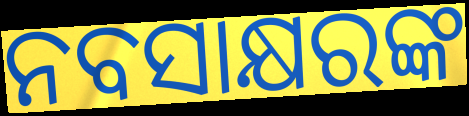
ନବସାକ୍ଷରଙ୍କ